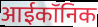
आईकॉनिक